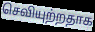
செவியுற்றதாக